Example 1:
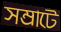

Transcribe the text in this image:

সম্ৰাটে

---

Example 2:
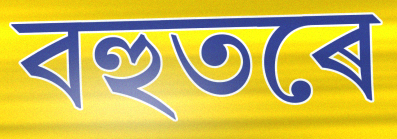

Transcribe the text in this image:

বহুতৰে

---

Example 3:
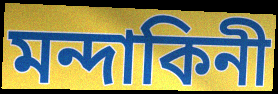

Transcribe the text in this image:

মন্দাকিনী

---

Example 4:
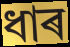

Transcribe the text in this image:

ধাৰ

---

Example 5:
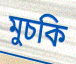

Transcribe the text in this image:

মুচকি